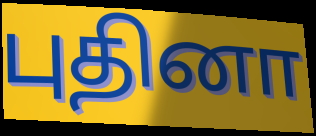
புதினா